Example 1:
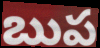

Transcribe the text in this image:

బుప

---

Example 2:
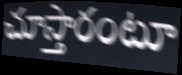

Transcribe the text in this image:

చూస్తారంటూ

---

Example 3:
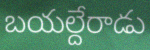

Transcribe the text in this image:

బయల్దేరాడు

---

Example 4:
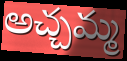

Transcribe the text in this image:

అచ్చమ్మ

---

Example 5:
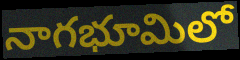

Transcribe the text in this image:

నాగభూమిలో